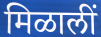
मिळालीं